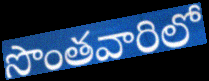
సొంతవారిలో